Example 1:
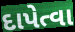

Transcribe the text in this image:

દાપેત્વા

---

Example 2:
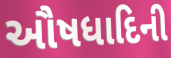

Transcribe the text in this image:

ઔષધાદિની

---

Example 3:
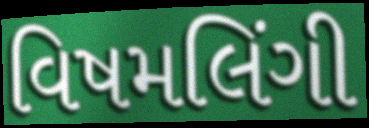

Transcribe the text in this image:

વિષમલિંગી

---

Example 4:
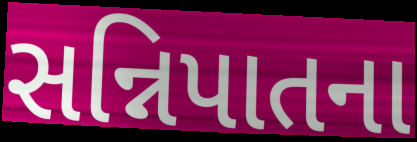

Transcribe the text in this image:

સન્નિપાતના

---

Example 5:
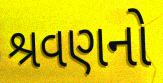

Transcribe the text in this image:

શ્રવણનો